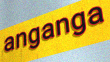
anganga